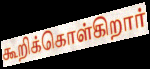
கூறிக்கொள்கிறார்